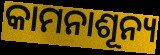
କାମନାଶୂନ୍ୟ